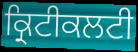
ਕ੍ਰਿਟੀਕਲਟੀ